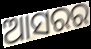
ଆସରର